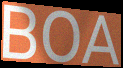
BOA